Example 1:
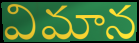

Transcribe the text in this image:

విమాన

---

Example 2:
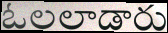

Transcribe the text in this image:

ఓలలాడారు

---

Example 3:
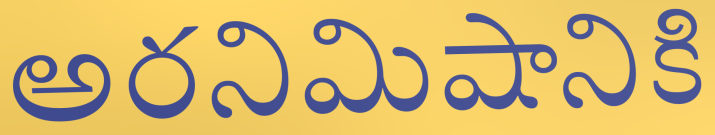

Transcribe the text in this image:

అరనిమిషానికి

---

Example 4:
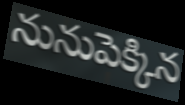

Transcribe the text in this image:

నునుపెక్కిన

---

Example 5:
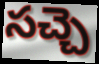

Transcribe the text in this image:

సచ్చె